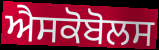
ਐਸਕੋਬੋਲਸ